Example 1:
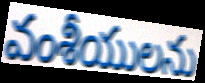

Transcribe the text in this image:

వంశీయులను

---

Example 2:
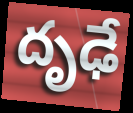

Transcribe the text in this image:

దృఢే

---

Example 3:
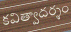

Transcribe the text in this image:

కవిత్వాదర్శం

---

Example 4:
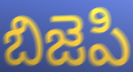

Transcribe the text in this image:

బిజెపి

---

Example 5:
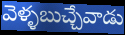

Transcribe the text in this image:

వెళ్ళబుచ్చేవాడు